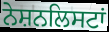
ਨੇਸ਼ਨਲਿਸਟਾਂ